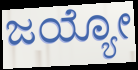
ಜಯ್ಯೋ